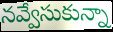
నవ్వేసుకున్నా